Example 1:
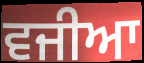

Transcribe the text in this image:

ਵਜੀਆ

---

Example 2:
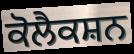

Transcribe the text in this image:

ਕੋਲੈਕਸ਼ਨ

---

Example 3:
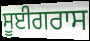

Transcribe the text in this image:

ਸੂਈਗਰਾਸ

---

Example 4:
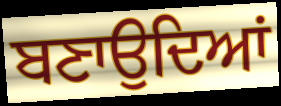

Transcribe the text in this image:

ਬਣਾਉਦਿਆਂ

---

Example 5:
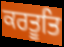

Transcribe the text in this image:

ਕਰਤੂਤਿ